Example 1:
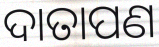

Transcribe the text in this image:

ଦାତାପଣ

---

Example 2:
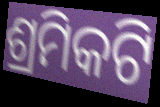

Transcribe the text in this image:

ଶ୍ରମିକଟି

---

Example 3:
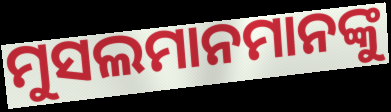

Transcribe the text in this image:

ମୁସଲମାନମାନଙ୍କୁ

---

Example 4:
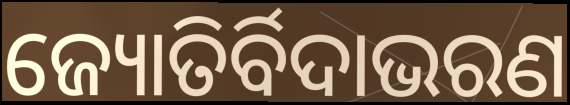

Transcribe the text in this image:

ଜ୍ୟୋତିର୍ବିଦାଭରଣ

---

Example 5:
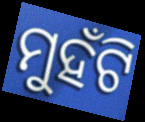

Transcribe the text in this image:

ମୁହଁଟି